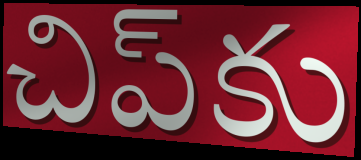
చిప్‌కు